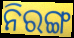
ନିରଙ୍ଗ